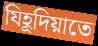
যিহূদিয়াতে